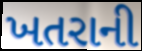
ખતરાની